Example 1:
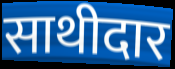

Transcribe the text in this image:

साथीदार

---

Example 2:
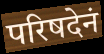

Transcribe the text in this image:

परिषदेनं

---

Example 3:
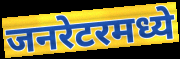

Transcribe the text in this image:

जनरेटरमध्ये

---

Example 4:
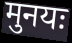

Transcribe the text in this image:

मुनयः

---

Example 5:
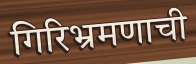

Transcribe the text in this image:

गिरिभ्रमणाची